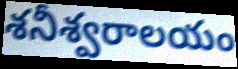
శనీశ్వరాలయం